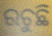
ରଚୁଛି